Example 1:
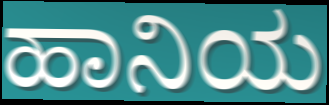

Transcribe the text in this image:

ಹಾನಿಯ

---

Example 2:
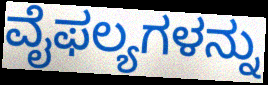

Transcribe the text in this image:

ವೈಫಲ್ಯಗಳನ್ನು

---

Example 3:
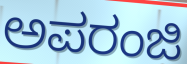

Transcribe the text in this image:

ಅಪರಂಜಿ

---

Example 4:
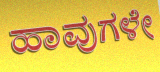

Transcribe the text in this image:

ಹಾವುಗಳೇ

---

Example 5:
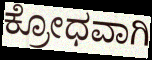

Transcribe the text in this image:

ಕ್ರೋಧವಾಗಿ